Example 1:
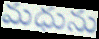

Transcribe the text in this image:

మధును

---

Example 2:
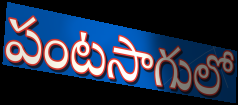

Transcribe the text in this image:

పంటసాగులో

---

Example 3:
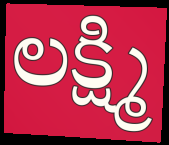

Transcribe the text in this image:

లక్ష్మి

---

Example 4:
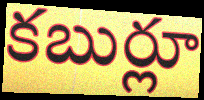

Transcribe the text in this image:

కబుర్లూ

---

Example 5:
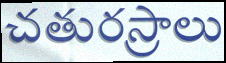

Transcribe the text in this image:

చతురస్రాలు